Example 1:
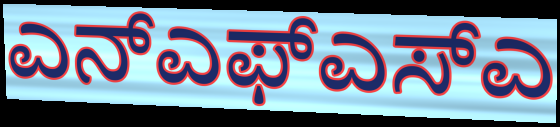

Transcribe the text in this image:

ಎನ್ಎಫ್ಎಸ್ಎ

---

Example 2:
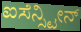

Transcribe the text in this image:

ಐಸೆನ್ಸ್ಟೀನ್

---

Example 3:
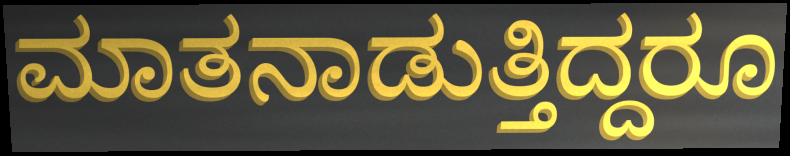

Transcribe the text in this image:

ಮಾತನಾಡುತ್ತಿದ್ದರೂ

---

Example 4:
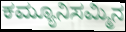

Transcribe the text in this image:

ಕಮ್ಯೂನಿಸಮ್ಮಿನ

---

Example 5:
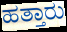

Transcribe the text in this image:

ಹತ್ತಾರು